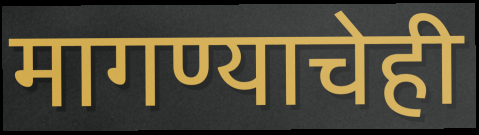
मागण्याचेही